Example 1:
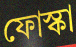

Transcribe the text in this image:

ফোস্কা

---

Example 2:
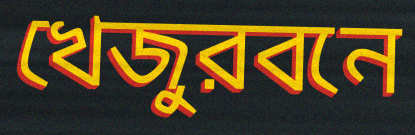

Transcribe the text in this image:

খেজুরবনে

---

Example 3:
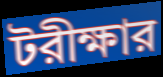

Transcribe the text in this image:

টরীক্ষার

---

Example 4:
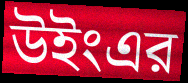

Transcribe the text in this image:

উইংএর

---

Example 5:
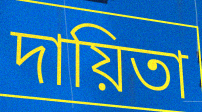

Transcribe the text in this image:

দায়িতা